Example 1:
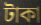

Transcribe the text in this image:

টাকা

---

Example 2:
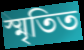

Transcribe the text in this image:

স্মৃতিত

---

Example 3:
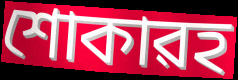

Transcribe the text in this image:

শোকাৱহ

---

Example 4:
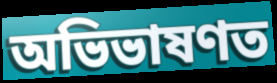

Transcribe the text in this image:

অভিভাষণত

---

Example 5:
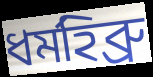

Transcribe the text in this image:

ধৰ্মহিব্ৰু